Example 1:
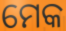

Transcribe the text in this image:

ମେକ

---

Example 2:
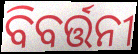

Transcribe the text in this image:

ବିବର୍ତ୍ତନୀ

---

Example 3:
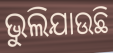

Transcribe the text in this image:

ଭୁଲିଯାଉଛି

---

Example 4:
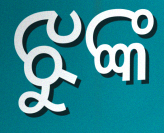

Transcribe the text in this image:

ଝୁଙ୍କ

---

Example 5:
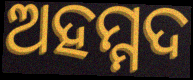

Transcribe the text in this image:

ଅହମ୍ମଦ